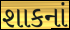
શાકનાં